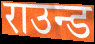
राउन्ड